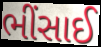
ભીંસાઈ